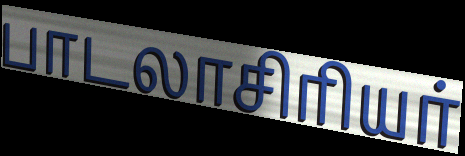
பாடலாசிரியர்